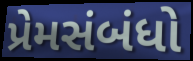
પ્રેમસંબંધો